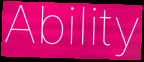
Ability